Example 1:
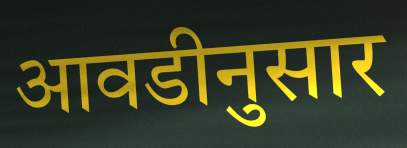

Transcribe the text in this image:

आवडीनुसार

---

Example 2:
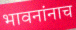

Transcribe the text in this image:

भावनांनाच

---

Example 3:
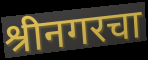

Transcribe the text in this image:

श्रीनगरचा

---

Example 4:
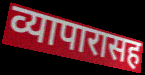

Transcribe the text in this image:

व्यापारासह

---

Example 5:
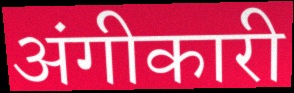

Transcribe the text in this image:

अंगीकारी